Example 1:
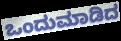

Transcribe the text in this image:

ಒಂದುಮಾಡಿದ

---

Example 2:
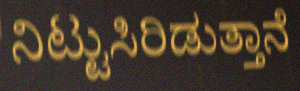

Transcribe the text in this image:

ನಿಟ್ಟುಸಿರಿಡುತ್ತಾನೆ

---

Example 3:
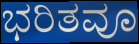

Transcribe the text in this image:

ಭರಿತವೂ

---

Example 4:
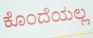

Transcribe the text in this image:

ಕೊಂದೆಯಲ್ಲ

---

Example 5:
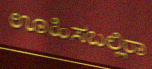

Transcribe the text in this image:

ಊಹಿಸಬಲ್ಲಿರಾ